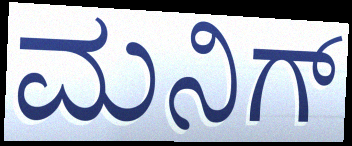
ಮನಿಗ್